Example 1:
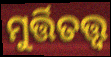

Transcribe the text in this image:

ମୁର୍ତ୍ତିତତ୍ତ୍ବ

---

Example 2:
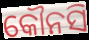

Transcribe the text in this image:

କୌନସି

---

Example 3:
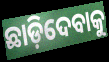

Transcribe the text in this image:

ଛାଡ଼ିଦେବାକୁ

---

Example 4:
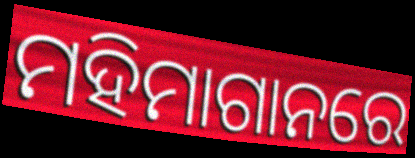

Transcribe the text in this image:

ମହିମାଗାନରେ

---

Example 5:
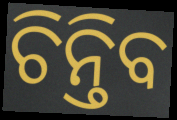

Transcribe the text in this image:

ଚିନ୍ତିବ